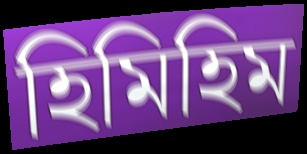
হিমিহিম